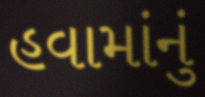
હવામાંનું